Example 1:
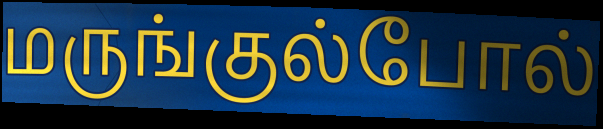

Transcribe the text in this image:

மருங்குல்போல்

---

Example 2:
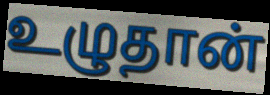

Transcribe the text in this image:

உழுதான்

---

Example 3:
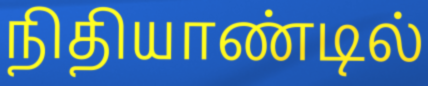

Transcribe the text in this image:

நிதியாண்டில்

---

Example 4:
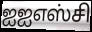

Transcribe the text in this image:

ஐஐஎஸ்சி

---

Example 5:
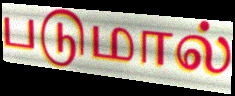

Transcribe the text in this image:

படுமால்